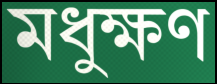
মধুক্ষণ